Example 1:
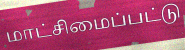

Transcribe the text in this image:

மாட்சிமைப்பட்டு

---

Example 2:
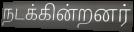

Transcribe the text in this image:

நடக்கின்றனர்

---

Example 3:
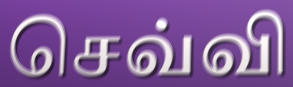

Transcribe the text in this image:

செவ்வி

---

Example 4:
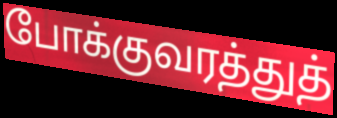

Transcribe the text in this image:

போக்குவரத்துத்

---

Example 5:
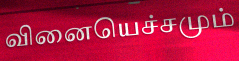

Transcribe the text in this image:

வினையெச்சமும்